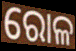
ରୋଳ